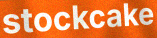
stockcake